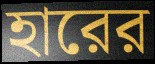
হারের